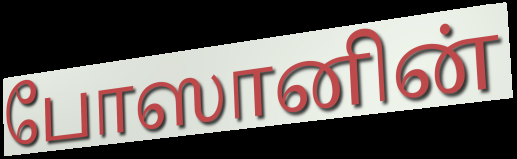
போஸானின்